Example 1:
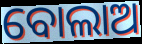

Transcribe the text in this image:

ବୋଲାଅ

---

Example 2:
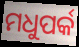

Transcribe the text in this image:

ମଧୁପର୍କ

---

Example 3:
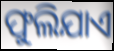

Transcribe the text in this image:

ଫୁଲିଯାଏ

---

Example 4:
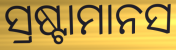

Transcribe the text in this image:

ସ୍ରଷ୍ଟାମାନସ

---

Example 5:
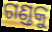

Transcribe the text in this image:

ଗଣ୍ଡକୁ